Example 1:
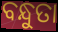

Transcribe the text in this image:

ବନ୍ଧୁତା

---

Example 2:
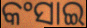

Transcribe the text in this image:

କଂସାଇ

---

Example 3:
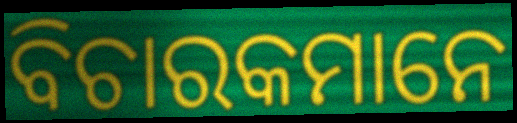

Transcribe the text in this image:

ବିଚାରକମାନେ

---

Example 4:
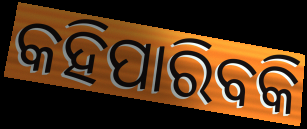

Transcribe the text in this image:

କହିପାରିବକି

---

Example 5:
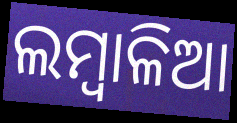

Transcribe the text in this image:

ଲମ୍ବାଳିଆ